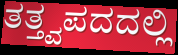
ತತ್ತ್ವಪದದಲ್ಲಿ